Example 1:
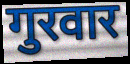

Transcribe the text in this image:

गुरवार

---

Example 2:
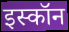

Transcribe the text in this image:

इस्कॉन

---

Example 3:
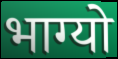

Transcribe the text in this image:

भाग्यो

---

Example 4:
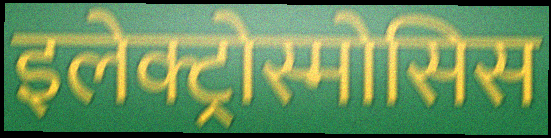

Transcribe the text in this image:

इलेक्ट्रोस्मोसिस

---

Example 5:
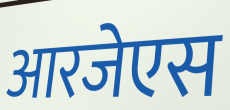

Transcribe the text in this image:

आरजेएस